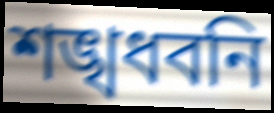
শঙ্খধবনি